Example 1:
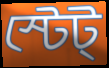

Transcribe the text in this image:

স্টেট্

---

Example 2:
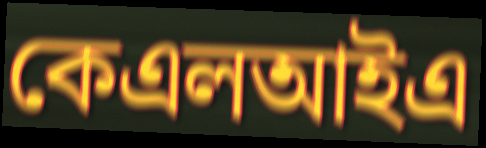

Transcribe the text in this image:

কেএলআইএ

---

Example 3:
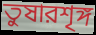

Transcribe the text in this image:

তুষারশৃঙ্গ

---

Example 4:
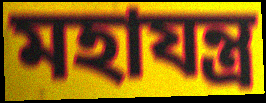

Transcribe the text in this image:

মহাযন্ত্র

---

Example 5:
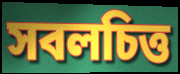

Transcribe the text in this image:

সবলচিত্ত